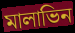
মালাভিন